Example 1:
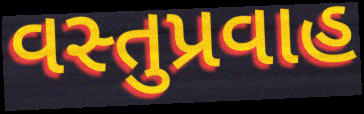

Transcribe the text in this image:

વસ્તુપ્રવાહ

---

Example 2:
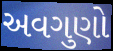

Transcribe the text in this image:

અવગુણો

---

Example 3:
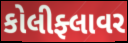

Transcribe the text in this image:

કોલીફ્લાવર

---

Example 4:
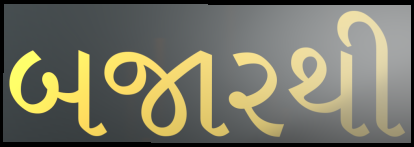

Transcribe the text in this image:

બજારથી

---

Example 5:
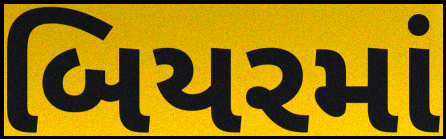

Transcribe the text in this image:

બિયરમાં